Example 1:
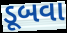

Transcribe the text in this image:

ડૂબવા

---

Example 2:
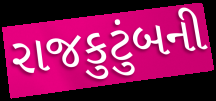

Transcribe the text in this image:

રાજકુટુંબની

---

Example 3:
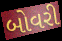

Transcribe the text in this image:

બોવરી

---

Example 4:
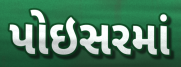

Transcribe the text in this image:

પોઇસરમાં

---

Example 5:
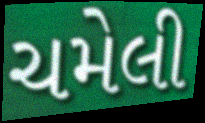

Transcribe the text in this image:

ચમેલી